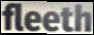
fleeth